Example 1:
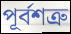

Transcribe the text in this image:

পূর্বশত্রু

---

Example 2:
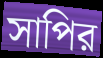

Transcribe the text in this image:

সাপির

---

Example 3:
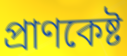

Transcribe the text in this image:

প্রাণকেষ্ট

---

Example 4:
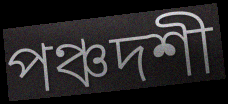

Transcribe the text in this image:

পঞ্চদশী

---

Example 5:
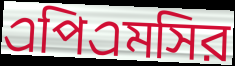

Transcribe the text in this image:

এপিএমসির